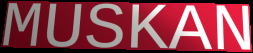
MUSKAN